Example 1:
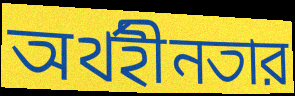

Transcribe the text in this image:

অর্থহীনতার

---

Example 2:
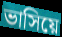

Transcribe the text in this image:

ভাসিয়ে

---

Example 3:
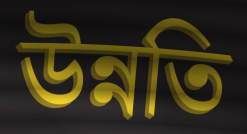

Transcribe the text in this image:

উন্নতি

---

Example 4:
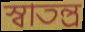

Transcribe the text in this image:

স্বাতন্ত্র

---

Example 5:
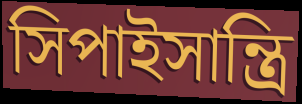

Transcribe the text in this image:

সিপাইসান্ত্রি